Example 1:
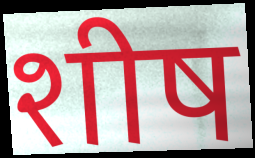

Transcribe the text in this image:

शीष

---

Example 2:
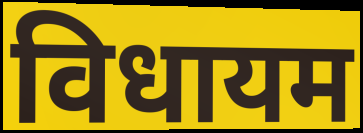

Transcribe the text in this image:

विधायम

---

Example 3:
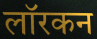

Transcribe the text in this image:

लॉरकन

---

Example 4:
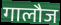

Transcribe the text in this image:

गालौज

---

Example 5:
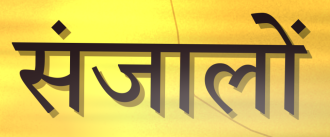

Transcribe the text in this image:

संजालों